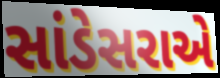
સાંડેસરાએ